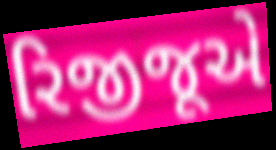
રિજીજૂએ